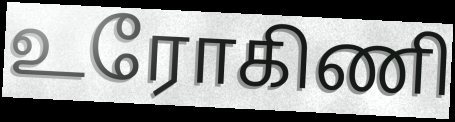
உரோகிணி